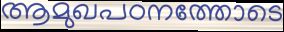
ആമുഖപഠനത്തോടെ